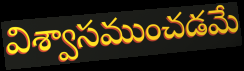
విశ్వాసముంచడమే